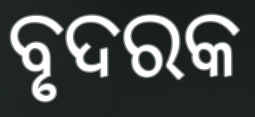
ବୃଦରକ